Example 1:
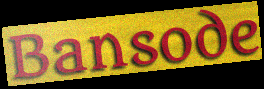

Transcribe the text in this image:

Bansode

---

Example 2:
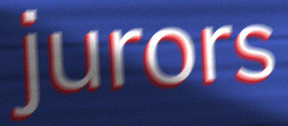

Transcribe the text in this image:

jurors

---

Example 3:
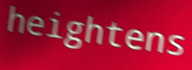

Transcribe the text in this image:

heightens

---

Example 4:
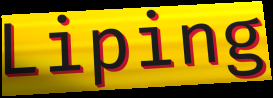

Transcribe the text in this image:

Liping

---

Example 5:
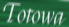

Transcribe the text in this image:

Totowa